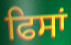
ਫਿਸਾਂ